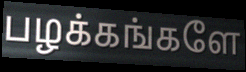
பழக்கங்களே